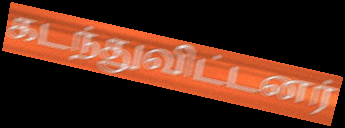
கடந்துவிட்டனர்